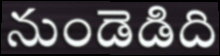
నుండెడిది